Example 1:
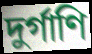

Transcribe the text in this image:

দুর্গাণি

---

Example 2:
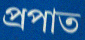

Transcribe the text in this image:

প্রপাত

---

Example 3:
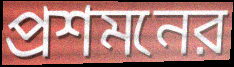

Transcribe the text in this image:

প্রশমনের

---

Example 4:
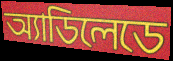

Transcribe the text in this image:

অ্যাডিলেডে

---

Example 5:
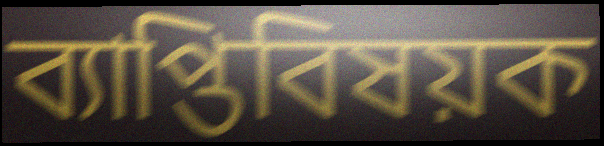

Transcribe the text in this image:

ব্যাপ্তিবিষয়ক